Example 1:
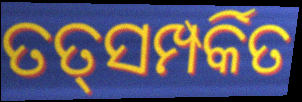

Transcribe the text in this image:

ତତ୍‌ସମ୍ପର୍କିତ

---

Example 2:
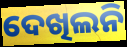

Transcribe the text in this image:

ଦେଖିଲନି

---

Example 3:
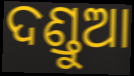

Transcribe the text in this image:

ଦଣ୍ଡୁଆ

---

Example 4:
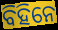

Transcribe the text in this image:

ବିହିନେ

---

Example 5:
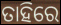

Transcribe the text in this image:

ତାହିରେ